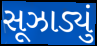
સૂઝાડ્યું